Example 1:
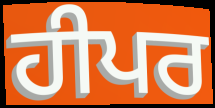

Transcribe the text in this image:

ਹੀਪਰ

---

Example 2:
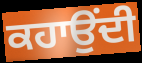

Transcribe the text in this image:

ਕਹਾਉਂਦੀ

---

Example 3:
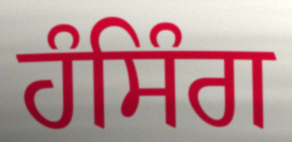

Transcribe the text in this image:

ਹੰਸਿੰਗ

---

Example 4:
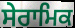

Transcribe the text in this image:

ਸੇਰਾਮਿਕ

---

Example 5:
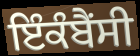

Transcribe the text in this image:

ਇੰਕੰਬੈਂਸੀ